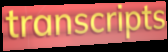
transcripts